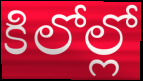
కిలోల్లో